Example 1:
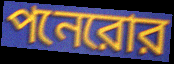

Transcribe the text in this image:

পনেরোর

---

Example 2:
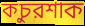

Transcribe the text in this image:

কচুরশাক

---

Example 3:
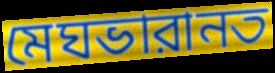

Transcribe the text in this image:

মেঘভারানত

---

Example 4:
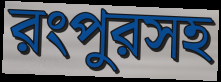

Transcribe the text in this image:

রংপুরসহ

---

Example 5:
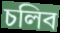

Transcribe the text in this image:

চলিব